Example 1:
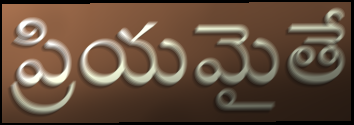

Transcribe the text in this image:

ప్రియమైతే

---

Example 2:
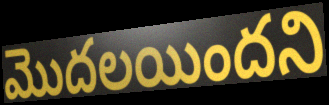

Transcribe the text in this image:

మొదలయిందని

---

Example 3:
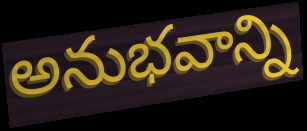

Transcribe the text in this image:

అనుభవాన్ని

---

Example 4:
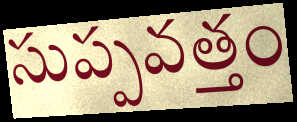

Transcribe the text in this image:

సుప్పవత్తం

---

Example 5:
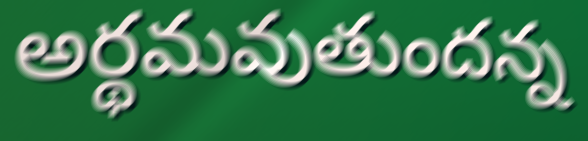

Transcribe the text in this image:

అర్థమవుతుందన్న